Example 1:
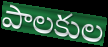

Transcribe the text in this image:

పాలకుల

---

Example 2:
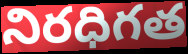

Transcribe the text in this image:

నిరధిగత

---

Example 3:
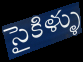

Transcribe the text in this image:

సైకిళ్ళు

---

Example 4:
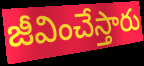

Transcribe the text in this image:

జీవించేస్తారు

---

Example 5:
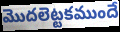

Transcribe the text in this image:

మొదలెట్టకముందే